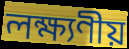
লক্ষ্যণীয়